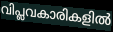
വിപ്ലവകാരികളിൽ